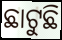
ଛାଟୁଛି